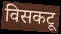
विसकटू